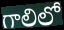
గాలిలో